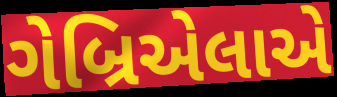
ગેબ્રિએલાએ